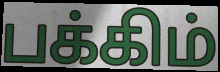
பக்கிம்